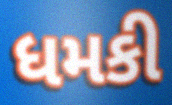
ધમકી